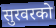
सुरवरको